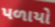
પળાયો